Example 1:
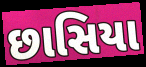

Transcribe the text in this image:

છાસિયા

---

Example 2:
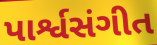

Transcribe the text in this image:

પાર્શ્વસંગીત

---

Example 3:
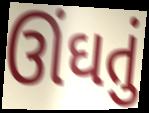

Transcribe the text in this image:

ઊંઘતું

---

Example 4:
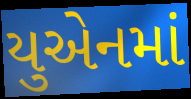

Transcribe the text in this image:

યુએનમાં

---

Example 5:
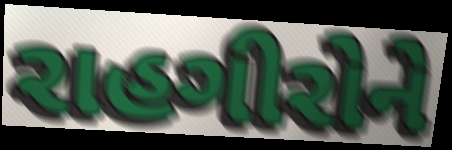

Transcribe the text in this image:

રાહગીરોને